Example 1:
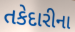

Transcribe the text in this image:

તકેદારીના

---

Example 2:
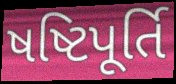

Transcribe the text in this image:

ષષ્ટિપૂર્તિ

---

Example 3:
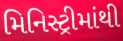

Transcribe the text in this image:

મિનિસ્ટ્રીમાંથી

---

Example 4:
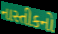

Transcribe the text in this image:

નાસ્તીકનો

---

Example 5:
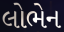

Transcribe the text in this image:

લોભેન